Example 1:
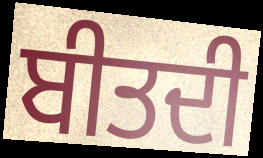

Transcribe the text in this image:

ਬੀਤਦੀ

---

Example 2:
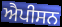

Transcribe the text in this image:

ਐਪੀਸਨ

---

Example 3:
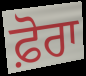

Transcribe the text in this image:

ਫ਼ੋਰਾ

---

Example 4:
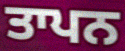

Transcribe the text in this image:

ਤਾਪਨ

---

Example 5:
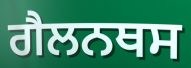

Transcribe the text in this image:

ਗੈਲਨਥਸ